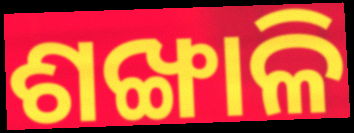
ଶଙ୍ଖାଳି